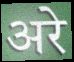
अरे